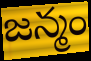
జన్మం